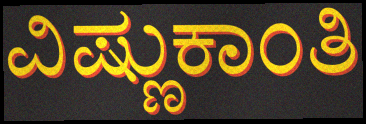
ವಿಷ್ಣುಕಾಂತಿ